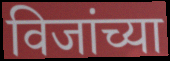
विजांच्या